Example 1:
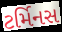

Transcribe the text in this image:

ટર્મિનસ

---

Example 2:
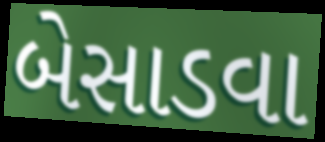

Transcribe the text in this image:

બેસાડવા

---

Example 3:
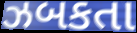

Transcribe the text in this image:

ઝબકતા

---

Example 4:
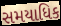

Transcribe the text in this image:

સમયાધિક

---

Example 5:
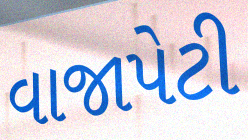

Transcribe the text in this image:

વાજાપેટી